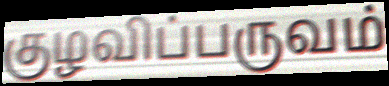
குழவிப்பருவம்